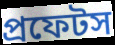
প্রফেটস